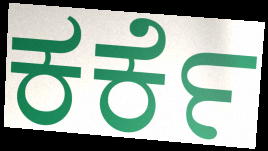
ಕರ್ಕೆ